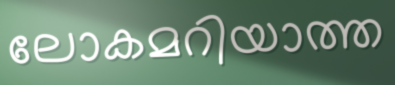
ലോകമറിയാത്ത